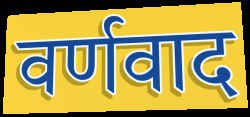
वर्णवाद